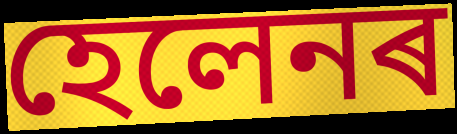
হেলেনৰ